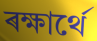
ৰক্ষাৰ্থে